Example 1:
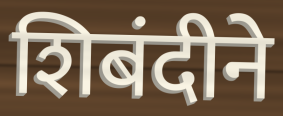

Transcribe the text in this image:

शिबंदीने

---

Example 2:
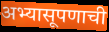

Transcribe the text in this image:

अभ्यासूपणाची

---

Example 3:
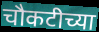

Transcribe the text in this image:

चौकटीच्या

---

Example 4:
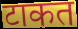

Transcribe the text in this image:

टाकत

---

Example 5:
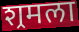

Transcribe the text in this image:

श्रमला